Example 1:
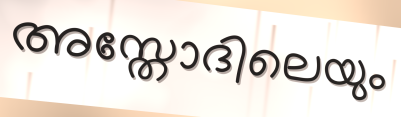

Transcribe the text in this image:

അസ്തോദിലെയും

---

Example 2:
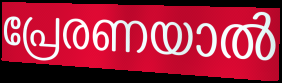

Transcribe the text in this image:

പ്രേരണയാൽ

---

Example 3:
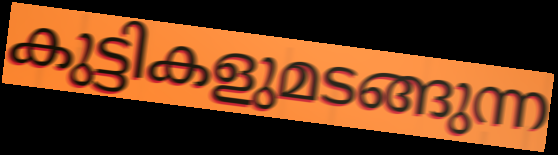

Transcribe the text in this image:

കുട്ടികളുമടങ്ങുന്ന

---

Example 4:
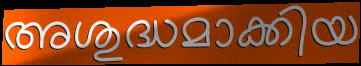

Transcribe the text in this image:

അശുദ്ധമാക്കിയ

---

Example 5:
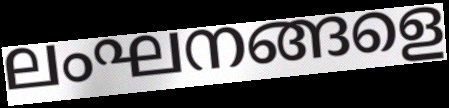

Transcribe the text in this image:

ലംഘനങ്ങളെ